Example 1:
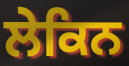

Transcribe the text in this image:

ਲੇਕਿਨ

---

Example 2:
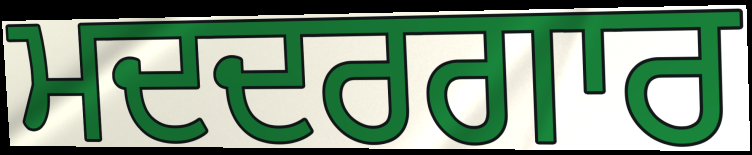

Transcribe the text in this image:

ਮਦਦਰਗਾਰ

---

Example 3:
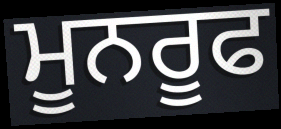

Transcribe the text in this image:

ਮੂਨਰੂਫ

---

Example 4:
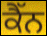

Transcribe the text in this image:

ਕੈੱਨ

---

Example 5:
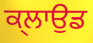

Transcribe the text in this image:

ਕ੍ਲਾਉਡ